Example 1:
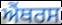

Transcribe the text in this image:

ਐਂਥਰਸ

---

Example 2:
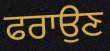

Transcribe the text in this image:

ਫਰਾਉਣ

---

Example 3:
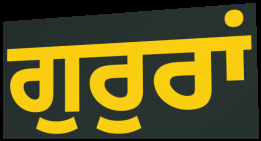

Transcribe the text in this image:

ਗੁਰੁਰਾਂ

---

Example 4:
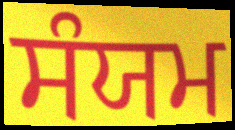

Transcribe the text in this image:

ਸੰਯਮ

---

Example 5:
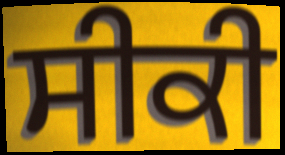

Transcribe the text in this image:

ਸੀਕੀ